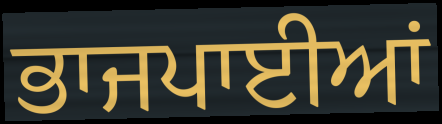
ਭਾਜਪਾਈਆਂ